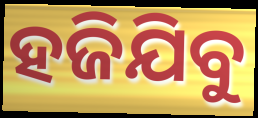
ହଜିଯିବୁ